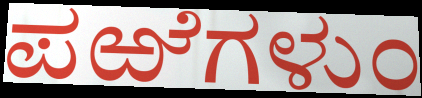
ಪಱೆಗಳುಂ